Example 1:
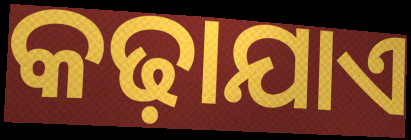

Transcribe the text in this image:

କଢ଼ାଯାଏ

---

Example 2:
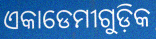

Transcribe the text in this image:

ଏକାଡେମୀଗୁଡ଼ିକ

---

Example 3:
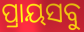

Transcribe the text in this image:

ପ୍ରାୟସବୁ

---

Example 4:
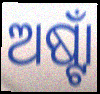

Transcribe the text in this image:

ଅଷ୍ଟାଁ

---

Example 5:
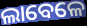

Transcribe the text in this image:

ଲାବେଳେ